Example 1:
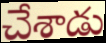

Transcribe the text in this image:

చేశాడు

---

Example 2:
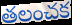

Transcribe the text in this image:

తలంచక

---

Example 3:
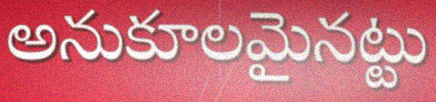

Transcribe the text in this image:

అనుకూలమైనట్టు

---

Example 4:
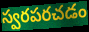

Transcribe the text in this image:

స్వరపరచడం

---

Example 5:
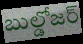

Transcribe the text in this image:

బుల్డోజర్